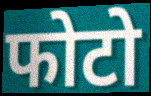
फोटो